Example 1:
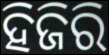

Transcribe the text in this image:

ହିଜିରି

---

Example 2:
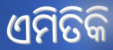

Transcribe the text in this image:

ଏମିତିକି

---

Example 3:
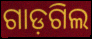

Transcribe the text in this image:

ଗାଡ଼ଗିଲ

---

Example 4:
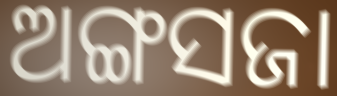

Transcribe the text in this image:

ଅଙ୍ଗସଜା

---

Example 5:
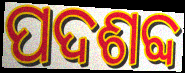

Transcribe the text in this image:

ପଦଶବ୍ଦ